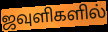
ஜவுளிகளில்